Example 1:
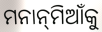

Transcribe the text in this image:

ମନାନ୍‌ମିଆଁକୁ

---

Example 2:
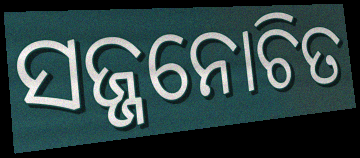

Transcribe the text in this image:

ସଜ୍ଜନୋଚିତ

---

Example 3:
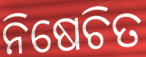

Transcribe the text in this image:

ନିଷେଚିତ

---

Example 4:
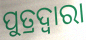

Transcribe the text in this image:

ପୁତ୍ରଦ୍ୱାରା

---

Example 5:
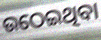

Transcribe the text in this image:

ଉଠେଇଥିବା